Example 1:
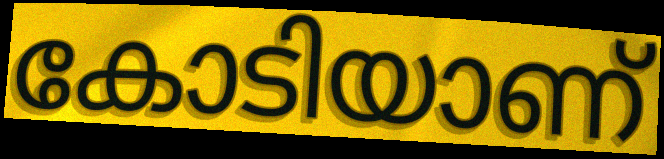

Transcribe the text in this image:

കോടിയാണ്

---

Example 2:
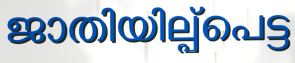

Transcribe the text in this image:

ജാതിയില്പ്പെട്ട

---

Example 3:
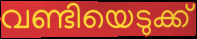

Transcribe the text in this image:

വണ്ടിയെടുക്ക്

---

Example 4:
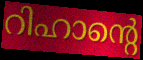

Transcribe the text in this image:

റിഹാന്റെ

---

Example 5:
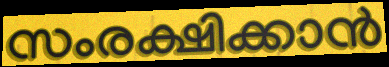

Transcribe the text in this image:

സംരക്ഷിക്കാൻ